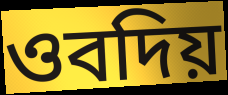
ওবদিয়